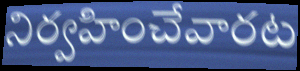
నిర్వహించేవారట